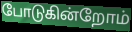
போடுகின்றோம்